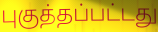
புகுத்தப்பட்டது